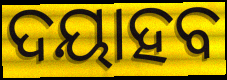
ଦୟାହବ